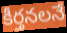
కీర్తనలనే